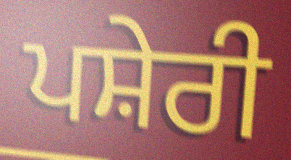
ਪਸ਼ੇਰੀ